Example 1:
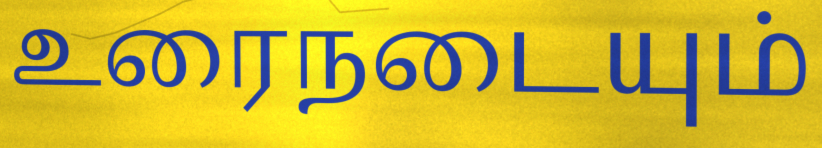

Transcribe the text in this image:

உரைநடையும்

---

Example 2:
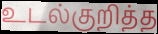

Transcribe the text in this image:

உடல்குறித்த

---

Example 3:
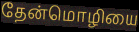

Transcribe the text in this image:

தேன்மொழியை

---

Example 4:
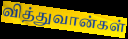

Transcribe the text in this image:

வித்துவான்கள்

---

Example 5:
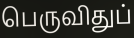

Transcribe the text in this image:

பெருவிதுப்